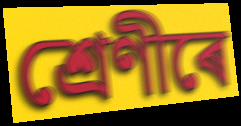
শ্ৰেণীৰে